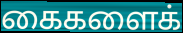
கைகளைக்